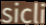
sicli